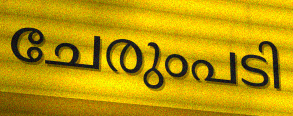
ചേരുംപടി